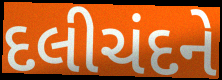
દલીચંદને